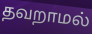
தவறாமல்